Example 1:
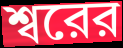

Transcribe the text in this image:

শ্বরের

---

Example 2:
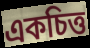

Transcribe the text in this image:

একচিত্ত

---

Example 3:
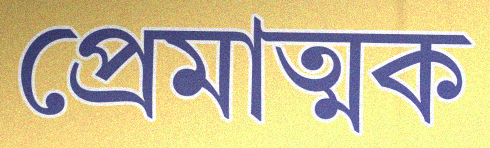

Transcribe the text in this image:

প্রেমাত্মক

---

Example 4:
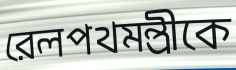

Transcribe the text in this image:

রেলপথমন্ত্রীকে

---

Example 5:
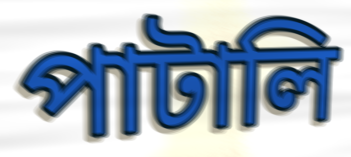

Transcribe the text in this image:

পাটালি